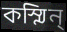
কস্মিন্